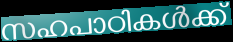
സഹപാഠികൾക്ക്